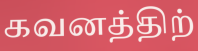
கவனத்திற்